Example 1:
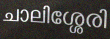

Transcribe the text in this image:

ചാലിശ്ശേരി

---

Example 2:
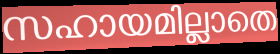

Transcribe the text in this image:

സഹായമില്ലാതെ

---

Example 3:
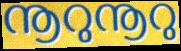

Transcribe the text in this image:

നൂറുനൂറു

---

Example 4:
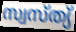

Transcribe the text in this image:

സ്വസ്ത്യ്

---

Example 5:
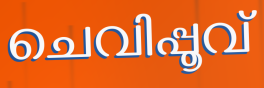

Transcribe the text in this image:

ചെവിപ്പൂവ്